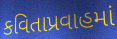
કવિતાપ્રવાહમાં